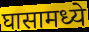
घासामध्ये